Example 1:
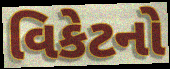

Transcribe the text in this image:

વિકેટનો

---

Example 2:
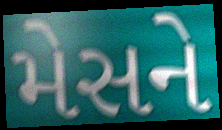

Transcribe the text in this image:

મેસને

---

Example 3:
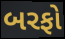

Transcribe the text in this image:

બરફો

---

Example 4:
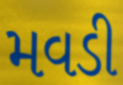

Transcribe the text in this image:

મવડી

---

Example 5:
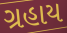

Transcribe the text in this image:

ગ્રહાય